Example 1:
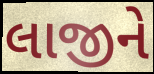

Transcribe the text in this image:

લાજીને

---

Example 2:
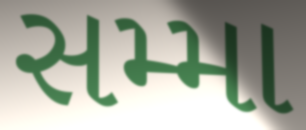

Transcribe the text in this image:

સમ્મા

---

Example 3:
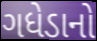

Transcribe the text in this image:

ગધેડાનો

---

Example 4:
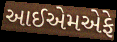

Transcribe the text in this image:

આઈએમએફે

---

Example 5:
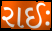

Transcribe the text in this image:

રાઈઃ